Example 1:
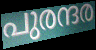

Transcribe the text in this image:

പുരന്ദര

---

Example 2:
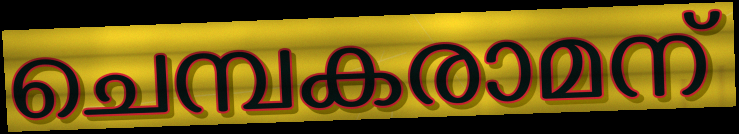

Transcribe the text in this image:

ചെമ്പകരാമന്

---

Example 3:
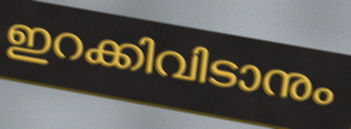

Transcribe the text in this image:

ഇറക്കിവിടാനും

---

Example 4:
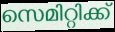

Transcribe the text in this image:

സെമിറ്റിക്ക്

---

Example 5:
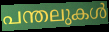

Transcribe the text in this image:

പന്തലുകൾ